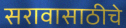
सरावासाठीचे